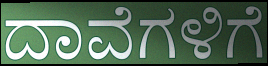
ದಾವೆಗಳಿಗೆ